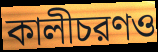
কালীচরণও